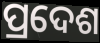
ପ୍ରଦେଶ